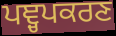
ਪਞ੍ਚਪਕਰਣ